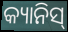
କ୍ୟାନିସ୍